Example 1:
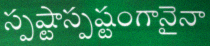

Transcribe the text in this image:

స్పష్టాస్పష్టంగానైనా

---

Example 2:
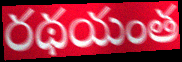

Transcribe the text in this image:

రథయంత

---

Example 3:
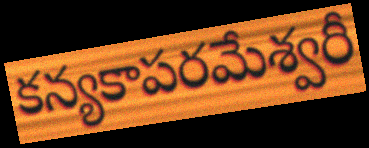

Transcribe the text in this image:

కన్యకాపరమేశ్వరీ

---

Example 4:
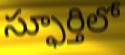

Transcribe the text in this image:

స్ఫూర్తిలో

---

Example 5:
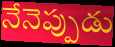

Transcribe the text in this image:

నేనెప్పుడు